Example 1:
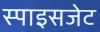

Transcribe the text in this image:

स्पाइसजेट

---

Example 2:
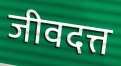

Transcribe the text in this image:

जीवदत्त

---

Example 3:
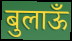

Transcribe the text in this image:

बुलाऊँ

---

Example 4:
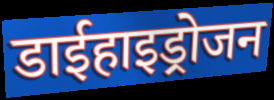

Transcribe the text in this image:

डाईहाइड्रोजन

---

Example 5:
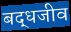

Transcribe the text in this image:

बद्धजीव